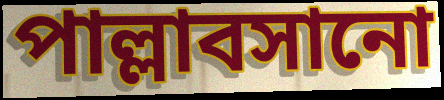
পাল্লাবসানো